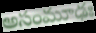
అసంమూఢః